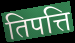
तिपत्ति